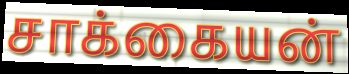
சாக்கையன்